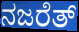
ನಜರೆತ್